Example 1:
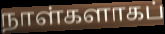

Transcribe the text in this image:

நாள்களாகப்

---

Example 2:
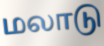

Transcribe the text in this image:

மலாடு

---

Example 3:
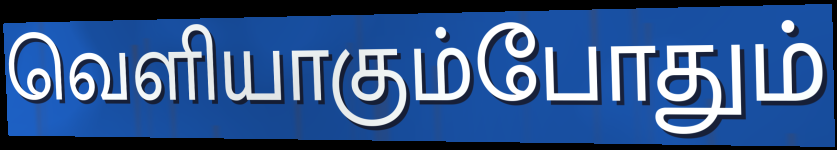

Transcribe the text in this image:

வெளியாகும்போதும்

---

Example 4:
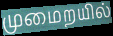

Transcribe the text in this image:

முமைறயில்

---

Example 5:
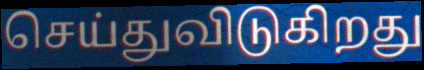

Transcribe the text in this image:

செய்துவிடுகிறது